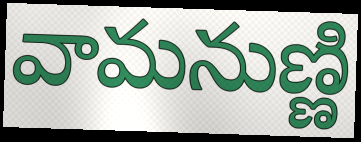
వామనుణ్ణి